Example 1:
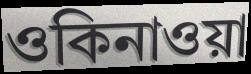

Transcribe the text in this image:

ওকিনাওয়া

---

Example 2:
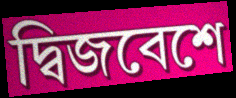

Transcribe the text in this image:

দ্বিজবেশে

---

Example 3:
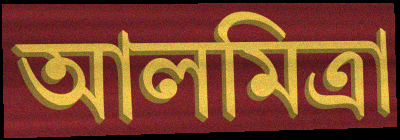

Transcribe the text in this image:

আলমিত্রা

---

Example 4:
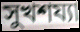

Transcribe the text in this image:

সুখশয্যা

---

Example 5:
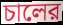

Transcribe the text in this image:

চালের